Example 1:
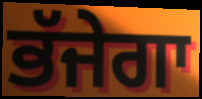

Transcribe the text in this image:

ਭੱਜੇਗਾ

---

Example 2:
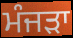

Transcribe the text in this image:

ਮੰਜੜਾ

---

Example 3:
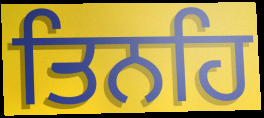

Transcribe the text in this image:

ਤਿਨਹਿ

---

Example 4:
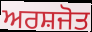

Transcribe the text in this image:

ਅਰਸ਼ਜੋਤ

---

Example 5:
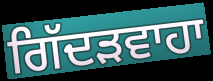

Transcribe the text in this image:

ਗਿੱਦੜਵਾਹਾ